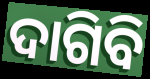
ଦାଗିବି